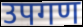
उपगण